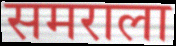
समराला